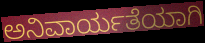
ಅನಿವಾರ್ಯತೆಯಾಗಿ